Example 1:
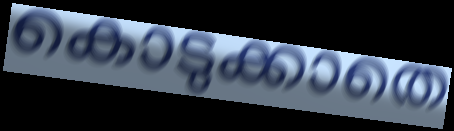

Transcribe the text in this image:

കൊടുക്കാതെ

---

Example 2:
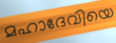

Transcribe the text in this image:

മഹാദേവിയെ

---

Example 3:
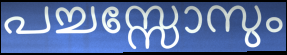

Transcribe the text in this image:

പച്ചസ്സോസും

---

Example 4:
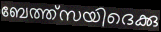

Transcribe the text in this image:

ബേത്ത്സയിദെക്കു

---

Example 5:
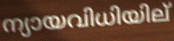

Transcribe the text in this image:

ന്യായവിധിയില്